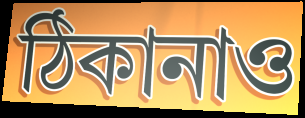
ঠিকানাও